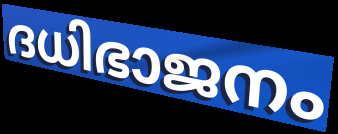
ദധിഭാജനം